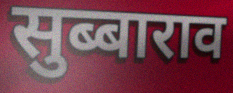
सुब्बाराव